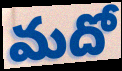
మదో